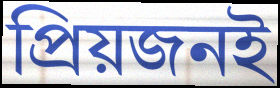
প্রিয়জনই